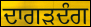
ਦਾਗੜਦੰਗ